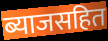
ब्याजसहित